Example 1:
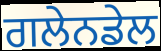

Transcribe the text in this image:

ਗਲੇਨਡੇਲ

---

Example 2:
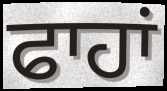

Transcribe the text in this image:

ਫਾਹਾਂ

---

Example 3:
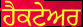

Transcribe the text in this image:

ਹੈਕਟੇਅਰ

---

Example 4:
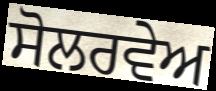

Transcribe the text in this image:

ਸੋਲਰਵੇਅ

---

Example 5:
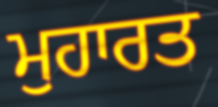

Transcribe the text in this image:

ਮੁਹਾਰਤ